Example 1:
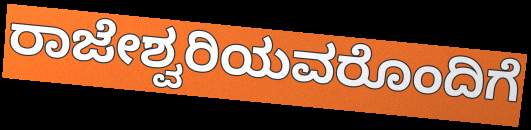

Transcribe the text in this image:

ರಾಜೇಶ್ವರಿಯವರೊಂದಿಗೆ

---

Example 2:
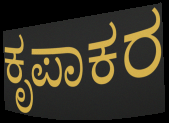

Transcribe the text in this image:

ಕೃಪಾಕರ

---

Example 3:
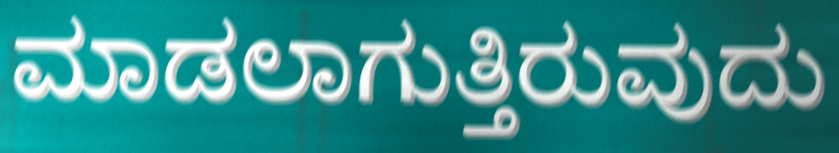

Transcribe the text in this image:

ಮಾಡಲಾಗುತ್ತಿರುವುದು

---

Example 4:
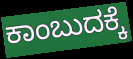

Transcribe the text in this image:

ಕಾಂಬುದಕ್ಕೆ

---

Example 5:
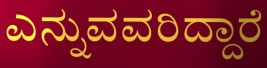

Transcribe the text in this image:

ಎನ್ನುವವರಿದ್ದಾರೆ